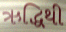
ઋદ્ધિથી